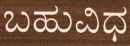
ಬಹುವಿಧ